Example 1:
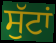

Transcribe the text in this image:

ਸੁੱਟਾਂ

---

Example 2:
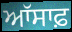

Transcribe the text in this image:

ਆੱਸਾਫ਼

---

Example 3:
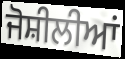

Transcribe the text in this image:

ਜੋਸ਼ੀਲੀਆਂ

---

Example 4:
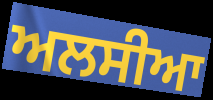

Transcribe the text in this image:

ਅਲਸੀਆ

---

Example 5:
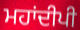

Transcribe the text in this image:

ਮਹਾਂਦੀਪੀ